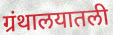
ग्रंथालयातली